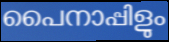
പൈനാപ്പിളും